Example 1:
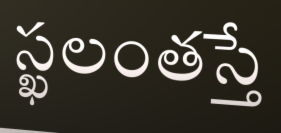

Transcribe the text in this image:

స్ఖలంతస్తే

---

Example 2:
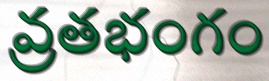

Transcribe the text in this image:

వ్రతభంగం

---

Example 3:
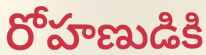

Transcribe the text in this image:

రోహణుడికి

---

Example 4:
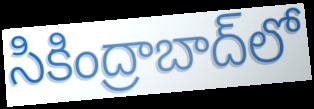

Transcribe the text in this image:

సికింద్రాబాద్‌లో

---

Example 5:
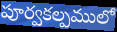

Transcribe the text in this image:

పూర్వకల్పములో